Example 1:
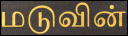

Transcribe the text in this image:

மடுவின்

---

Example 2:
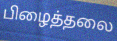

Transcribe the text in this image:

பிழைத்தலை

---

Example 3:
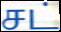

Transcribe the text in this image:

சட்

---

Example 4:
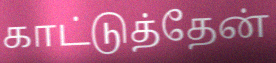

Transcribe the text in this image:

காட்டுத்தேன்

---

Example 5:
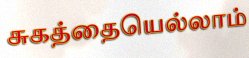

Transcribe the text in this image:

சுகத்தையெல்லாம்